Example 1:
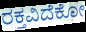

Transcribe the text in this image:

ರಕ್ತವಿದೆಕೋ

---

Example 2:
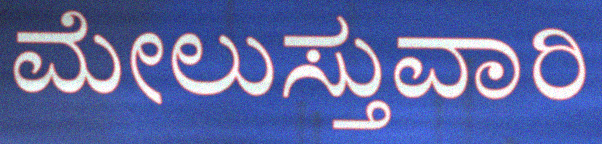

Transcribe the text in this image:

ಮೇಲುಸ್ತುವಾರಿ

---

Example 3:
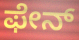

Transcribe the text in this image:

ಫೇನ್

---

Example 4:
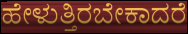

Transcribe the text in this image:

ಹೇಳುತ್ತಿರಬೇಕಾದರೆ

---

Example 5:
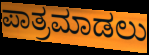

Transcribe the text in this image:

ಪಾತ್ರಮಾಡಲು